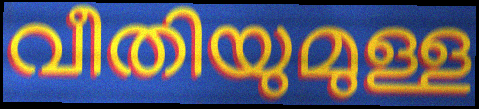
വീതിയുമുള്ള